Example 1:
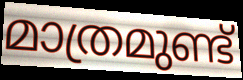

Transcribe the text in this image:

മാത്രമുണ്ട്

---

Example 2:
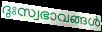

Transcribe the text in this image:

ദുഃസ്വഭാവങ്ങൾ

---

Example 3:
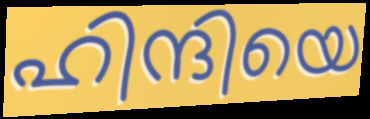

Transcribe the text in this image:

ഹിന്ദിയെ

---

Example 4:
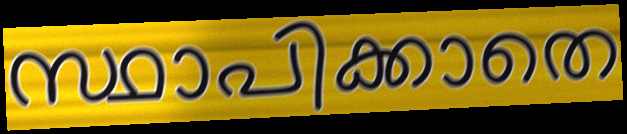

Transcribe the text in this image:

സ്ഥാപിക്കാതെ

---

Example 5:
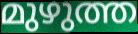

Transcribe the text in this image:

മുഴുത്ത